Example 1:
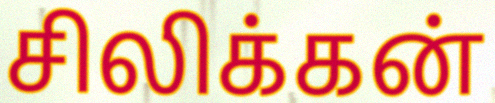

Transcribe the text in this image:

சிலிக்கன்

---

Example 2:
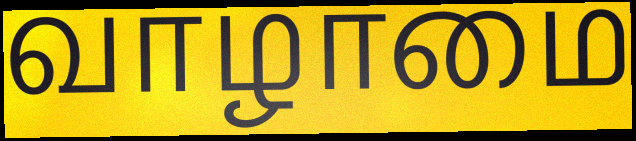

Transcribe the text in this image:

வாழாமை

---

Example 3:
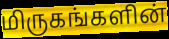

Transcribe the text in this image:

மிருகங்களின்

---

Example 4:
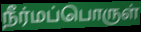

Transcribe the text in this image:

நீர்மப்பொருள்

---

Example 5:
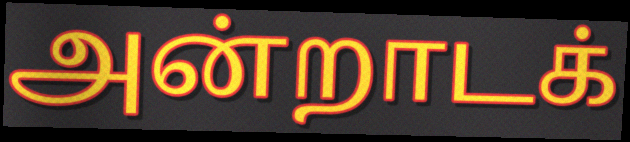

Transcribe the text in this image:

அன்றாடக்